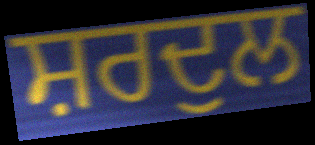
ਸ਼ਰਦੁਲ